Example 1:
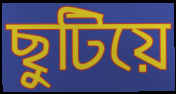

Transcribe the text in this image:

ছুটিয়ে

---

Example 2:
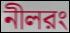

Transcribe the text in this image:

নীলরং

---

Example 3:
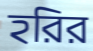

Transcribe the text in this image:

হরির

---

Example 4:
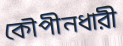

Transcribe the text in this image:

কৌপীনধারী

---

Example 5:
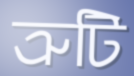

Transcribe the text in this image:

ত্রুটি